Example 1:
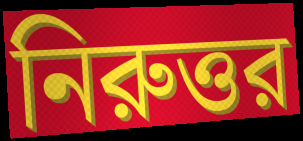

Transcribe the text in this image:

নিরুত্তর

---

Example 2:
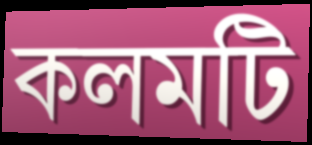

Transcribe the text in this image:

কলমটি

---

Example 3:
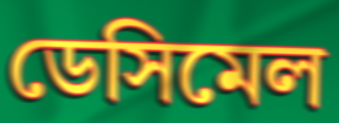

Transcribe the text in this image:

ডেসিমেল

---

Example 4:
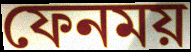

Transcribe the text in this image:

ফেনময়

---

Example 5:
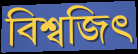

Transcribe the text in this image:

বিশ্বজিৎ